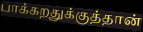
பாக்கறதுக்குத்தான்